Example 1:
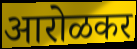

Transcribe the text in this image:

आरोळकर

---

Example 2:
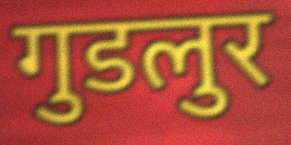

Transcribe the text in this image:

गुडलुर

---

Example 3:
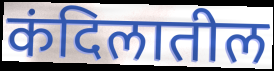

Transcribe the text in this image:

कंदिलातील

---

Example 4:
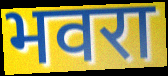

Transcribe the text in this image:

भवरा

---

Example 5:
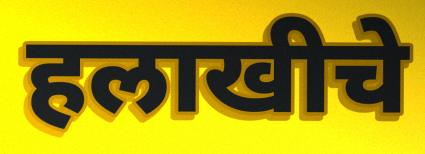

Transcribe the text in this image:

हलाखीचे